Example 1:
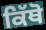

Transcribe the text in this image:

ਕਿੱਥੋ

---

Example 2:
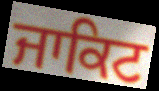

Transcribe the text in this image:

ਜਾਕਿਟ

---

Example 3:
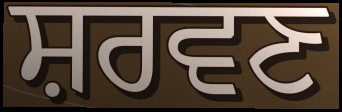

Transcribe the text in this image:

ਸ਼ਰਵਣ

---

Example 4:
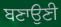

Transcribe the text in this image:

ਬਣਾਉਣੀ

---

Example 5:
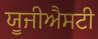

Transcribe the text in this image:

ਯੂਜੀਐਸਟੀ